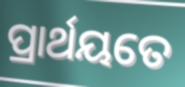
ପ୍ରାର୍ଥୟତେ